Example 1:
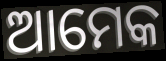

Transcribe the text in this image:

ଆମେକ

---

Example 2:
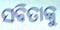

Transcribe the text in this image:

ସବିତାକୁ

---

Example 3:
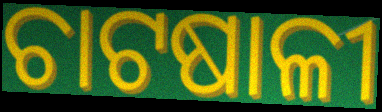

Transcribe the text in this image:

ଚାଟଷାଳୀ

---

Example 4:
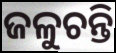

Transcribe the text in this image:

ଜଳୁଚନ୍ତି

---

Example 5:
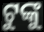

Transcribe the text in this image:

ଟୁଙ୍କୁ